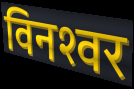
विनश्वर